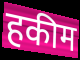
हकीम